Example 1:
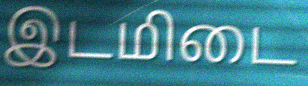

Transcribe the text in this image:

இடமிடை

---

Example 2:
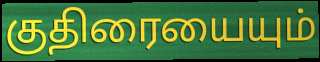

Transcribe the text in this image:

குதிரையையும்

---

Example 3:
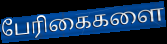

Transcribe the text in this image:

பேரிகைகளை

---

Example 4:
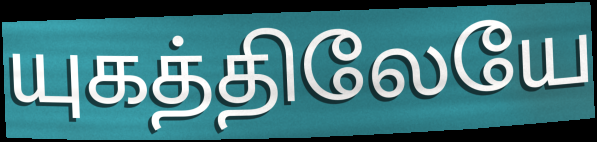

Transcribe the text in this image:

யுகத்திலேயே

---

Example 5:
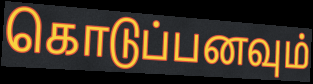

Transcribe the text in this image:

கொடுப்பனவும்